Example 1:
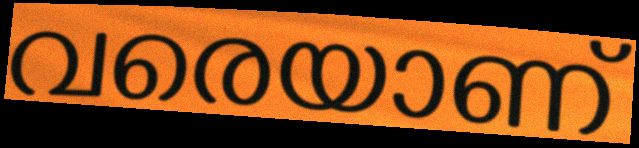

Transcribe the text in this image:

വരെയാണ്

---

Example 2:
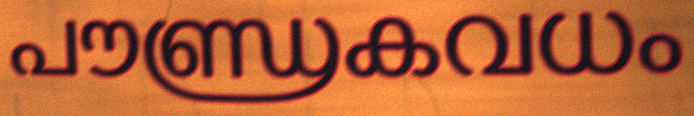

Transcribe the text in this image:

പൗണ്ഡ്രകവധം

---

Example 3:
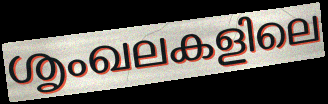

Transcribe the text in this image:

ശൃംഖലകളിലെ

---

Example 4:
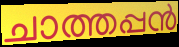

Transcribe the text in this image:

ചാത്തപ്പൻ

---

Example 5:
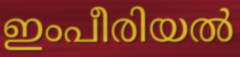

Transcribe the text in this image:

ഇംപീരിയൽ